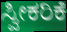
ಸ್ವೀಕರಿಕೆ